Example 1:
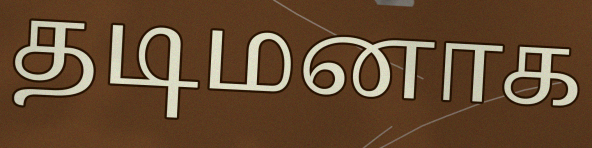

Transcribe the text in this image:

தடிமனாக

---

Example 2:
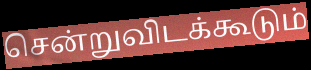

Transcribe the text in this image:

சென்றுவிடக்கூடும்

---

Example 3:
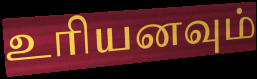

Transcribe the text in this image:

உரியனவும்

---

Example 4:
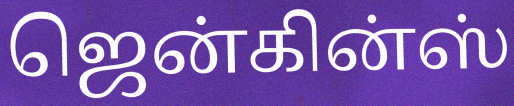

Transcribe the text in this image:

ஜென்கின்ஸ்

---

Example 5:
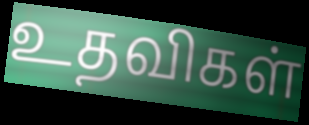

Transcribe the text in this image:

உதவிகள்